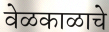
वेळकाळाचे